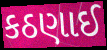
કઠણાઈ